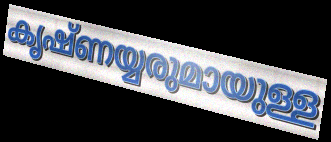
കൃഷ്ണയ്യരുമായുള്ള